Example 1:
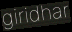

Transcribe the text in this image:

giridhar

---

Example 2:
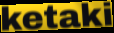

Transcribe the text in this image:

ketaki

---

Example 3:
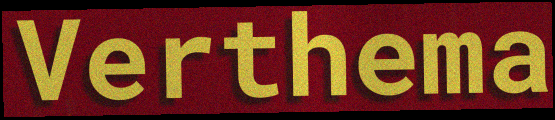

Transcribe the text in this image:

Verthema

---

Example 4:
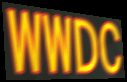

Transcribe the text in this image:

WWDC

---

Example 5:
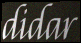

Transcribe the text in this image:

didar